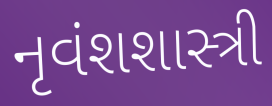
નૃવંશશાસ્ત્રી